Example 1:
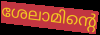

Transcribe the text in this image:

ശേലാമിന്റെ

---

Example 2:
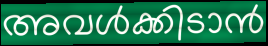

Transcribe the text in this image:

അവൾക്കിടാൻ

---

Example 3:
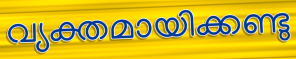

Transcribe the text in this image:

വ്യക്തമായിക്കണ്ടു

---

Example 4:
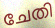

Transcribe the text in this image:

ചേതി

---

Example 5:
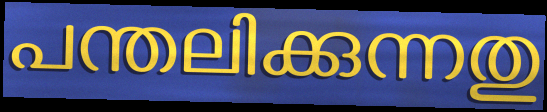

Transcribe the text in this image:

പന്തലിക്കുന്നതു